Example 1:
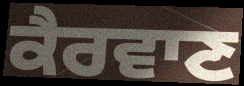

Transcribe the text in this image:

ਕੈਰਵਾਣ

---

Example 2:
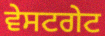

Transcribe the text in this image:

ਵੇਸਟਗੇਟ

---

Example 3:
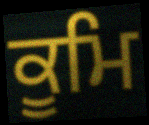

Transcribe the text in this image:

ਕੂਮਿ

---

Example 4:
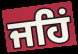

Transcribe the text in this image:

ਜਹਿਂ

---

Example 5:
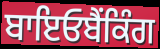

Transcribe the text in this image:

ਬਾਇਓਬੈਂਕਿੰਗ